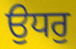
ਉਧਰੁ